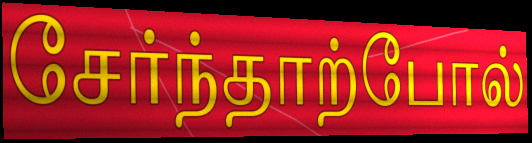
சேர்ந்தாற்போல்